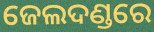
ଜେଲଦଣ୍ଡରେ